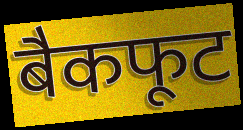
बैकफूट